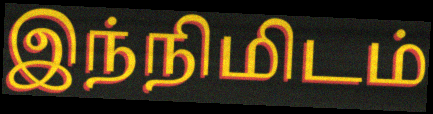
இந்நிமிடம்